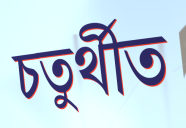
চতুৰ্থীত